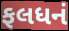
ફલધનં